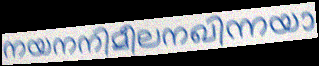
നയനനിമീലനഖിന്നയാ